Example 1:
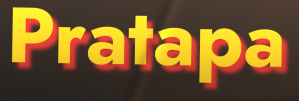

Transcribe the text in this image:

Pratapa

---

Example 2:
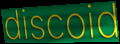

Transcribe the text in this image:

discoid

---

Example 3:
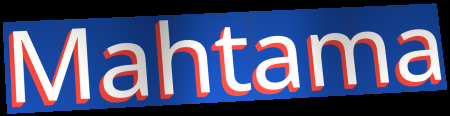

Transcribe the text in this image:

Mahtama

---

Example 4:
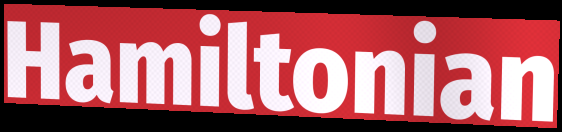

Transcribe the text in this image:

Hamiltonian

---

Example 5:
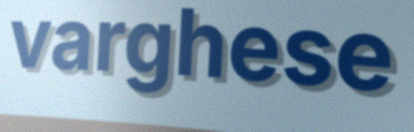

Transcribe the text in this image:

varghese